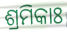
ଶ୍ରମିକାଃ